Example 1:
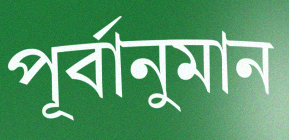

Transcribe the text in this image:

পূর্বানুমান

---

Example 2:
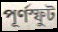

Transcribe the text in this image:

পূর্ণস্ফুট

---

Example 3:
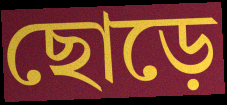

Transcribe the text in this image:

ছোড়ে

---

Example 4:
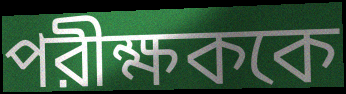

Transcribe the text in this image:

পরীক্ষককে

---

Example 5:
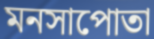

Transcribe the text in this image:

মনসাপোতা